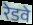
रेडवे